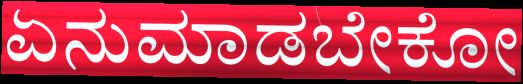
ಏನುಮಾಡಬೇಕೋ